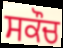
ਸਕੌਚ